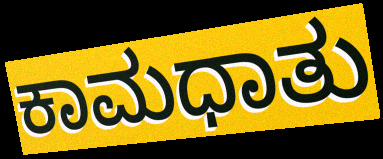
ಕಾಮಧಾತು